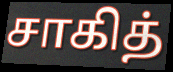
சாகித்